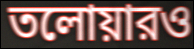
তলোয়ারও